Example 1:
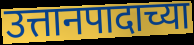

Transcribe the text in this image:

उत्तानपादाच्या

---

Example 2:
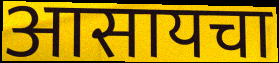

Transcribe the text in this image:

आसायचा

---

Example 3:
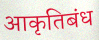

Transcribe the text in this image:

आकृतिबंध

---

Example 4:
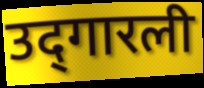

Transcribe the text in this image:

उद्‌गारली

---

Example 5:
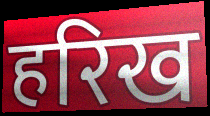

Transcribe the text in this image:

हरिख